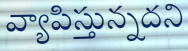
వ్యాపిస్తున్నదని